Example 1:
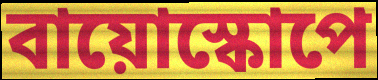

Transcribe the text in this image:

বায়োস্কোপে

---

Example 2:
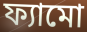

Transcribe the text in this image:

ফ্যামো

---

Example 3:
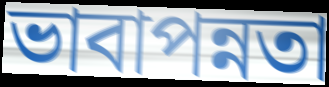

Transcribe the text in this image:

ভাবাপন্নতা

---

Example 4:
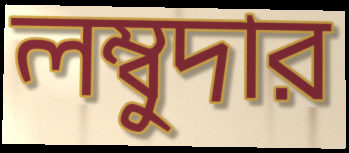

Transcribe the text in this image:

লম্বুদার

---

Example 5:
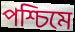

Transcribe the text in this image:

পশ্চিমে